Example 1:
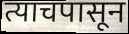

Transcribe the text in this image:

त्याचपासून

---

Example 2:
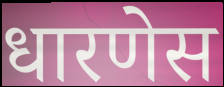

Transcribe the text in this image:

धारणेस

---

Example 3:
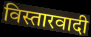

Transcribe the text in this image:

विस्तारवादी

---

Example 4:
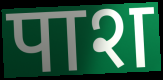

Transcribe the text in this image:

पाश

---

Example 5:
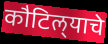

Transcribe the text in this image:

कौटिल्याचे